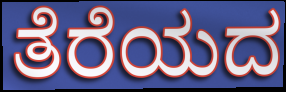
ತೆರೆಯದ